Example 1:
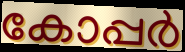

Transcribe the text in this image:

കോപ്പർ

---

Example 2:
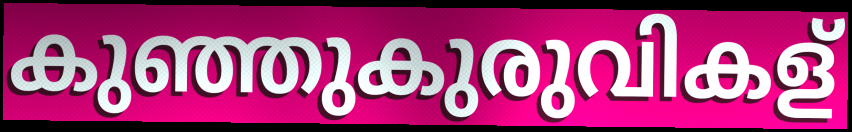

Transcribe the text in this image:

കുഞ്ഞുകുരുവികള്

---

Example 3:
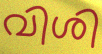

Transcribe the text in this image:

വിശി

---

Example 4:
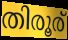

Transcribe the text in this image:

തിരൂര്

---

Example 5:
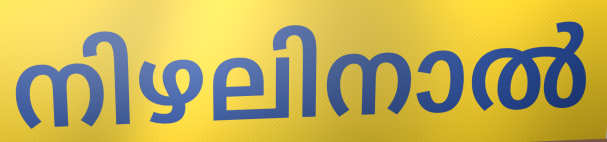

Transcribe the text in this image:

നിഴലിനാൽ